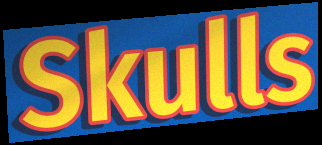
Skulls